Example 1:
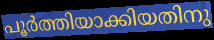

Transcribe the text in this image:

പൂർത്തിയാക്കിയതിനു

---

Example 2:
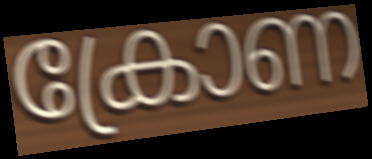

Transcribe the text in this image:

ക്രോണ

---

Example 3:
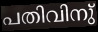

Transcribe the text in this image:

പതിവിനു്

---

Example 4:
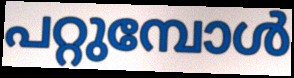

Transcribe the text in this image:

പറ്റുമ്പോൾ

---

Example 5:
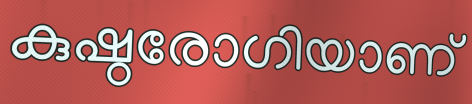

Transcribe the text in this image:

കുഷ്ഠരോഗിയാണ്